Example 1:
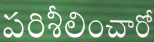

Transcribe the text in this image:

పరిశీలించారో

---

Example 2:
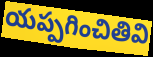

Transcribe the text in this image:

యప్పగించితివి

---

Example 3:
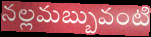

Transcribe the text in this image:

నల్లమబ్బువంటి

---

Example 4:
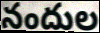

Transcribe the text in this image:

నందుల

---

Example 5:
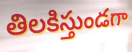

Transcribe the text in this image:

తిలకిస్తుండగా